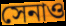
সেনাও